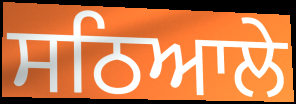
ਸਠਿਆਲੇ